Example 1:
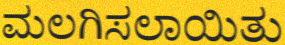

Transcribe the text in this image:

ಮಲಗಿಸಲಾಯಿತು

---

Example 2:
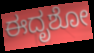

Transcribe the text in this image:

ಈದೃಶೋ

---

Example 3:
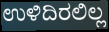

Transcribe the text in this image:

ಉಳಿದಿರಲಿಲ್ಲ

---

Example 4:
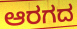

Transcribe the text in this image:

ಆರಗದ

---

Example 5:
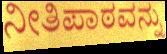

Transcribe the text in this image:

ನೀತಿಪಾಠವನ್ನು